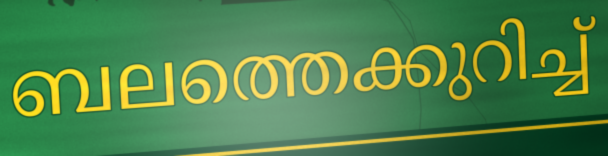
ബലത്തെക്കുറിച്ച്